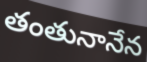
తంతునానేన